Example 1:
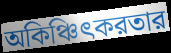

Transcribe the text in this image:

অকিঞ্চিৎকরতার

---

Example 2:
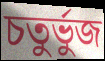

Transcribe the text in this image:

চতুর্ভুজ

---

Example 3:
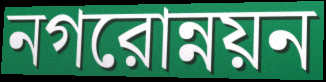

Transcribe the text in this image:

নগরোন্নয়ন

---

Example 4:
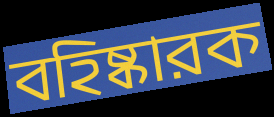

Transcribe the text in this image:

বহিষ্কারক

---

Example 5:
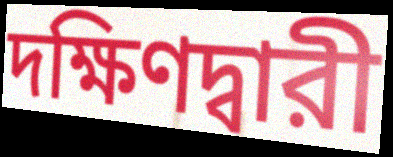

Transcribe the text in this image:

দক্ষিণদ্বারী